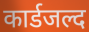
कार्डजल्द